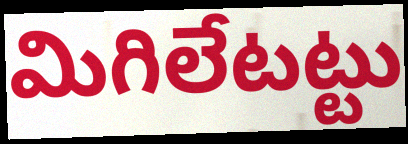
మిగిలేటట్టు